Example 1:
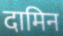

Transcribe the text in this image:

दामिन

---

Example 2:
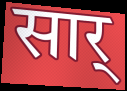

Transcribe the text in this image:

सार्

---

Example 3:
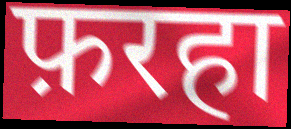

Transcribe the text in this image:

फ़रहा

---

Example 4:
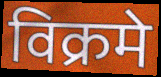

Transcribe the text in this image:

विक्रमे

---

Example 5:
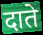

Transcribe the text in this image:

दाते